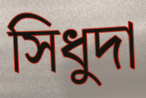
সিধুদা